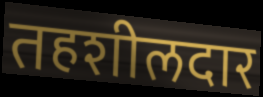
तहशीलदार